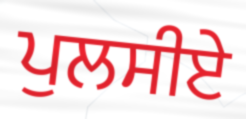
ਪੁਲਸੀਏ